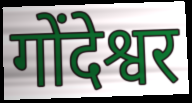
गोंदेश्वर